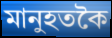
মানুহতকৈ